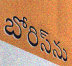
బోరిస్‌ను